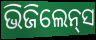
ଭିଜିଲେନ୍‌ସ